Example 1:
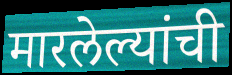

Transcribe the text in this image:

मारलेल्यांची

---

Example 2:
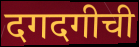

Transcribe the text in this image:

दगदगीची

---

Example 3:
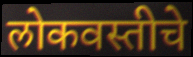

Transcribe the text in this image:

लोकवस्तीचे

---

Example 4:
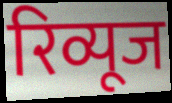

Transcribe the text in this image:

रिव्यूज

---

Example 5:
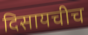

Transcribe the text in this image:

दिसायचीच